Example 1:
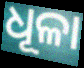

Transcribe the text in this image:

ଧୂଳା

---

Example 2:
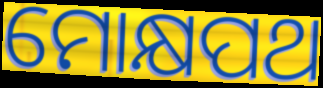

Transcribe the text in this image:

ମୋକ୍ଷପଥ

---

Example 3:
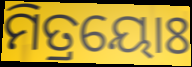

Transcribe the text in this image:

ମିତ୍ରୟୋଃ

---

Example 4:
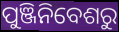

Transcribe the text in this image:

ପୁଞ୍ଜିନିବେଶରୁ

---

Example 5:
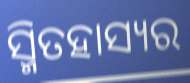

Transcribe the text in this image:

ସ୍ମିତହାସ୍ୟର